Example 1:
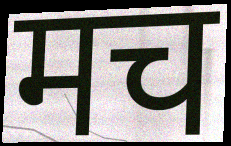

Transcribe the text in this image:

मच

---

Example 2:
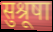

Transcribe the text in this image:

सुश्रूषा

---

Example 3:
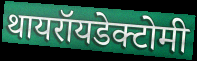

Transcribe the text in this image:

थायरॉयडेक्टोमी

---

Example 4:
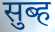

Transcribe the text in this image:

सुब्ह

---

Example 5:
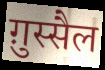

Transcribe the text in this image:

ग़ुस्सैल